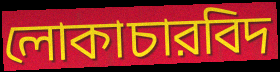
লোকাচারবিদ